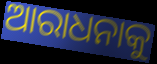
ଆରାଧନାକୁ